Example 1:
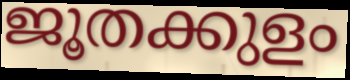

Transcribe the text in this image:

ജൂതക്കുളം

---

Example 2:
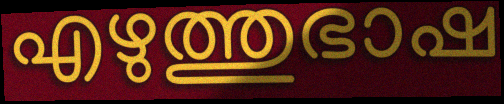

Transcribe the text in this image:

എഴുത്തുഭാഷ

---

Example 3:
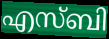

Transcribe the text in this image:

എസ്ബി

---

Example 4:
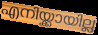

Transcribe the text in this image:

എനിയ്ക്കായില്ല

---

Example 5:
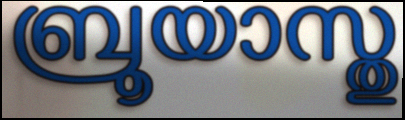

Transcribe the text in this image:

ബ്രൂയാസ്തു